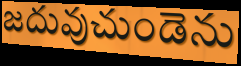
జదువుచుండెను